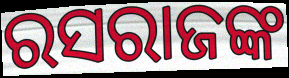
ରସରାଜଙ୍କ